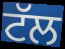
ਟੱਲ